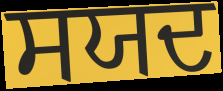
ਸਯਦ